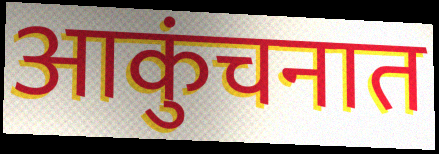
आकुंचनात